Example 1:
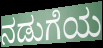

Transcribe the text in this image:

ನಡುಗೆಯ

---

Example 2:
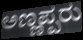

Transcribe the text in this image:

ಅಣ್ಣಪ್ಪರು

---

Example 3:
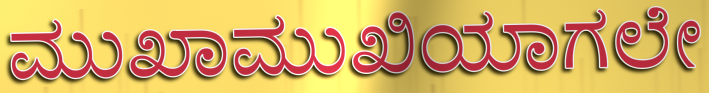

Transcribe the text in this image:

ಮುಖಾಮುಖಿಯಾಗಲೇ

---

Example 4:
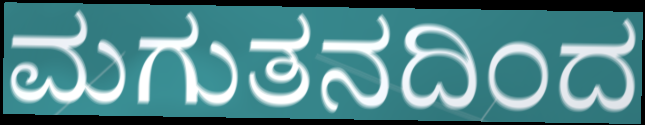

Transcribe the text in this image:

ಮಗುತನದಿಂದ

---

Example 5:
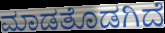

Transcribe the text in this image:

ಮಾಡತೊಡಗಿದೆ